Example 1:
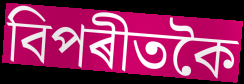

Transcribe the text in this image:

বিপৰীতকৈ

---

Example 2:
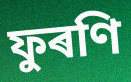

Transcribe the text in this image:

ফুৰণি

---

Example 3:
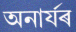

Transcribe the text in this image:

অনাৰ্যৰ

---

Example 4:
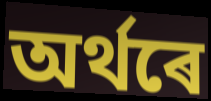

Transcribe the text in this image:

অৰ্থৰে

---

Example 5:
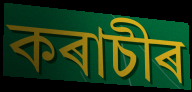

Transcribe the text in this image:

কৰাচীৰ